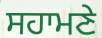
ਸਹਾਮਣੇ